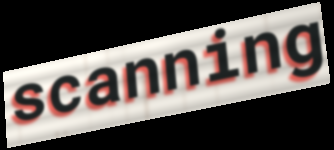
scanning